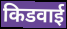
किडवाई